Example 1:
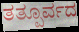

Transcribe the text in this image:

ತತ್ಪೂರ್ವದ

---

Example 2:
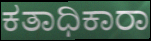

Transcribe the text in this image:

ಕತಾಧಿಕಾರಾ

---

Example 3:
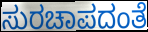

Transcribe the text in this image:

ಸುರಚಾಪದಂತೆ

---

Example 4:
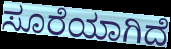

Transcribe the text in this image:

ಸೂರೆಯಾಗಿದೆ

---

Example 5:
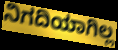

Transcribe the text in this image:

ನಿಗದಿಯಾಗಿಲ್ಲ